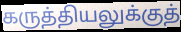
கருத்தியலுக்குத்